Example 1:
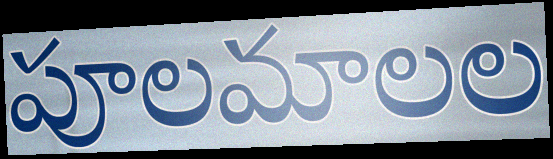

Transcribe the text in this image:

పూలమాలల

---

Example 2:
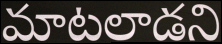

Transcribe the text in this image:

మాటలాడని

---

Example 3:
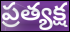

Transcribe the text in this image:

ప్రత్యక్ష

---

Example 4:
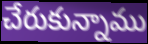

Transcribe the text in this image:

చేరుకున్నాము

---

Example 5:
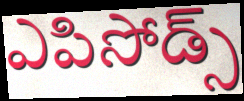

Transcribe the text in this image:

ఎపిసోడ్స్